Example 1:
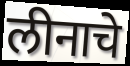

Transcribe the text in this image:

लीनाचे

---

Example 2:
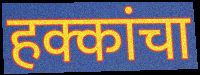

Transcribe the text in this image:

हक्कांचा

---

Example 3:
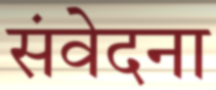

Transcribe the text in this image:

संवेदना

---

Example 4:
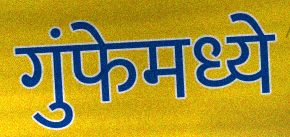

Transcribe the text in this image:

गुंफेमध्ये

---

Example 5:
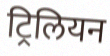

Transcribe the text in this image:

ट्रिलियन